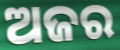
ଅଜର